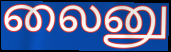
லைனு